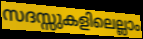
സദസ്സുകളിലെല്ലാം